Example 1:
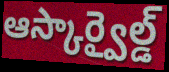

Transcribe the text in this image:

ఆస్కార్వైల్డ్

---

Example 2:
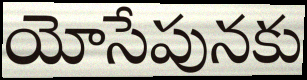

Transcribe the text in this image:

యోసేపునకు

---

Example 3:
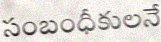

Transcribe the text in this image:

సంబంధీకులనే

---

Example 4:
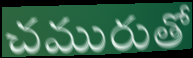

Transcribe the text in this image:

చమురుతో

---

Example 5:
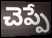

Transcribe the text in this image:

చెప్పే